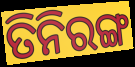
ତିନିରଙ୍ଗ